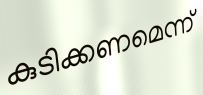
കുടിക്കണമെന്ന്